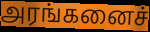
அரங்கனைச்